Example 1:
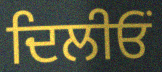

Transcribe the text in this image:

ਦਿਲੀਓਂ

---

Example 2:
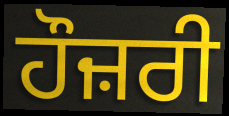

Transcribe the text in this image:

ਹੌਜ਼ਰੀ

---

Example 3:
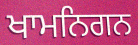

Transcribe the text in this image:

ਖਾਮਨਿਗਨ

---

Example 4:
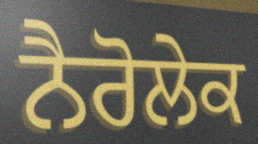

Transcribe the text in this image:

ਨੈਰੋਲੇਕ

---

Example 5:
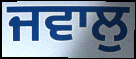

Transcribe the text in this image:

ਜਵਾਲੁ